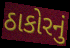
ઠાકોરનું